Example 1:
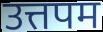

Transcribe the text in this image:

उत्तपम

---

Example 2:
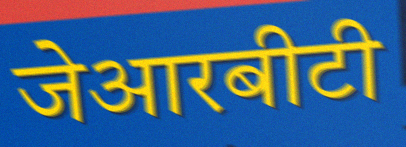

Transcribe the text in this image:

जेआरबीटी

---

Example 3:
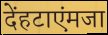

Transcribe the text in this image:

देंहटाएंमजा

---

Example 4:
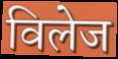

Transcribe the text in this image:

विलेज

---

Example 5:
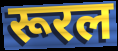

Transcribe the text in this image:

रूरल